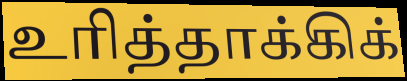
உரித்தாக்கிக்